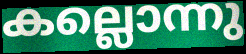
കല്ലൊന്നു